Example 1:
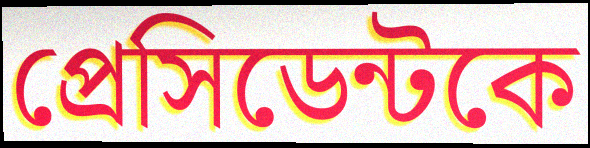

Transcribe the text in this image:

প্রেসিডেন্টকে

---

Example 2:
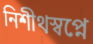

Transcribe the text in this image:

নিশীথস্বপ্নে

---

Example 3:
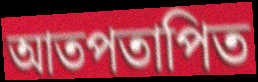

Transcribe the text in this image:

আতপতাপিত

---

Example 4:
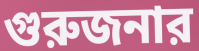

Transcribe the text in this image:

গুরুজনার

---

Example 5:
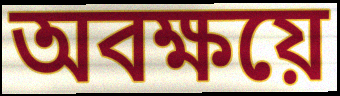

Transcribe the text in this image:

অবক্ষয়ে